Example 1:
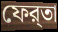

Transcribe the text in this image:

ফের্‌তা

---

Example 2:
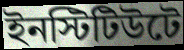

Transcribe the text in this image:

ইনস্টিটিউটে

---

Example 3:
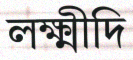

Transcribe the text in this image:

লক্ষ্মীদি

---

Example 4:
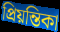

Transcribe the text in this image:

প্রিয়ন্তিকা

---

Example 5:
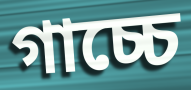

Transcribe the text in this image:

গাচ্চে